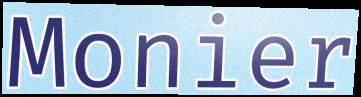
Monier